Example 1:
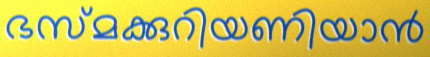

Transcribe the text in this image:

ഭസ്മക്കുറിയണിയാൻ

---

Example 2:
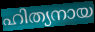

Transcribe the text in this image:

ഹിത്യനായ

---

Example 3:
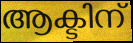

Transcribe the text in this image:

ആക്ടിന്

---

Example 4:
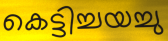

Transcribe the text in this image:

കെട്ടിച്ചയച്ചു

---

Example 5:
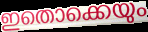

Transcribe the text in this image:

ഇതൊക്കെയും